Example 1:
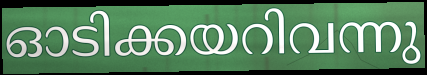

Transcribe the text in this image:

ഓടിക്കയറിവന്നു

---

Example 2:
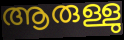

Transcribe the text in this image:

ആരുള്ളു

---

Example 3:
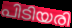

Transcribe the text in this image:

പിടിയരി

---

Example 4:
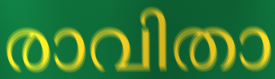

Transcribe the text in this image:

രാവിതാ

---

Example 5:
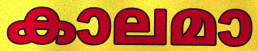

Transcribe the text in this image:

കാലമാ